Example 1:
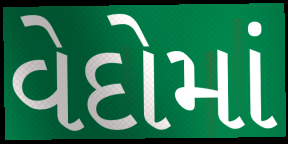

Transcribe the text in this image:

વેદોમાં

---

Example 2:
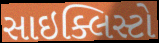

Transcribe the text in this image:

સાઇક્લિસ્ટો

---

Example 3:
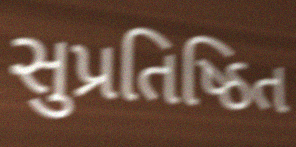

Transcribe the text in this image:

સુપ્રતિષ્ઠિત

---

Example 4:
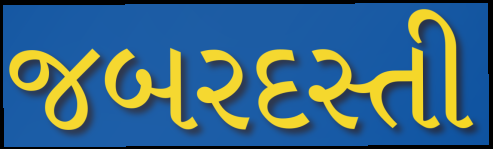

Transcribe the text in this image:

જબરદસ્તી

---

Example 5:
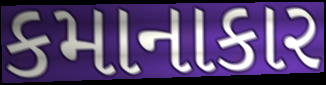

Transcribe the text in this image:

કમાનાકાર